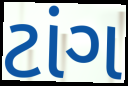
ટાંગ